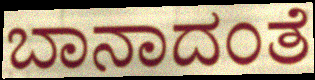
ಬಾನಾದಂತೆ